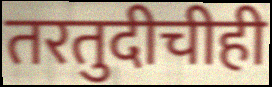
तरतुदीचीही